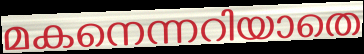
മകനെന്നറിയാതെ